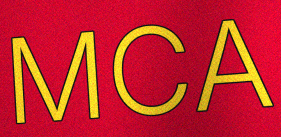
MCA